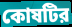
কোষটির